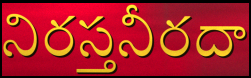
నిరస్తనీరదా